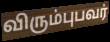
விரும்புபவர்